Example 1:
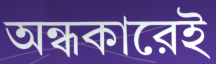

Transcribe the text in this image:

অন্ধকারেই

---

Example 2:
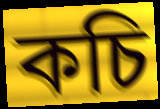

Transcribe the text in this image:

কচি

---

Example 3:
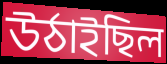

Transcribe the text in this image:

উঠাইছিল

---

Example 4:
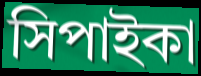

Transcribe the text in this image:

সিপাইকা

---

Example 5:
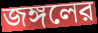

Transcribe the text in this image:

জঙ্গলের